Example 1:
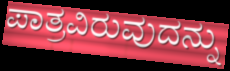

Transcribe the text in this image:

ಪಾತ್ರವಿರುವುದನ್ನು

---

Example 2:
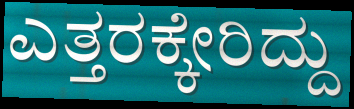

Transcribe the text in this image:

ಎತ್ತರಕ್ಕೇರಿದ್ದು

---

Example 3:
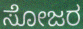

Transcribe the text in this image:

ಸೋಜರ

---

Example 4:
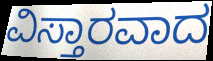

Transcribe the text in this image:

ವಿಸ್ತಾರವಾದ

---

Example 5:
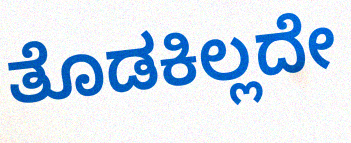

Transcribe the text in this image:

ತೊಡಕಿಲ್ಲದೇ